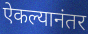
ऐकल्यानंतर